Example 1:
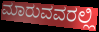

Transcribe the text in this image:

ಮಾರುವವರಲ್ಲಿ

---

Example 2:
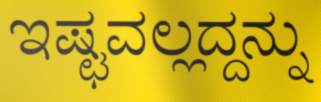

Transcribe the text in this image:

ಇಷ್ಟವಲ್ಲದ್ದನ್ನು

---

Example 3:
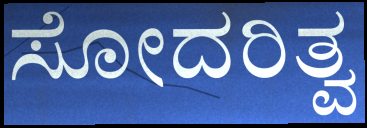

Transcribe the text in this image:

ಸೋದರಿತ್ವ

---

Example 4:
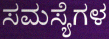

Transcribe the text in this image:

ಸಮಸ್ಯೆಗಳ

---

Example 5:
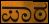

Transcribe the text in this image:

ಪಾಠ